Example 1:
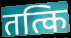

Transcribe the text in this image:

तत्कि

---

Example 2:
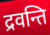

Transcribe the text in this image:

द्रवन्ति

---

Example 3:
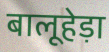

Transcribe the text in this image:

बालूहेड़ा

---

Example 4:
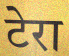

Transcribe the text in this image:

टेरा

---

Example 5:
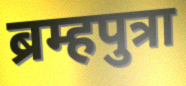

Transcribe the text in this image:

ब्रम्हपुत्रा